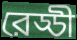
রেড্ডী